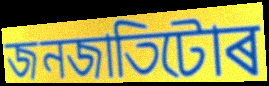
জনজাতিটোৰ